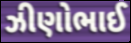
ઝીણોભાઈ